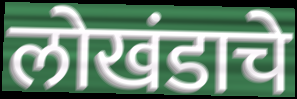
लोखंडाचे